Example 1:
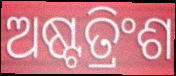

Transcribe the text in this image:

ଅଷ୍ଟତ୍ରିଂଶ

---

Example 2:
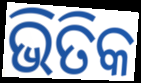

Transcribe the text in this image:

ଭିତିକ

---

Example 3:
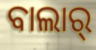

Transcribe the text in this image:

ବାଲାର୍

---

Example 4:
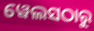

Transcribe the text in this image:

ୱେଲସଠାରୁ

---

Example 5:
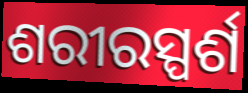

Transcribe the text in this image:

ଶରୀରସ୍ପର୍ଶ